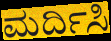
ಮರ್ದಿಸಿ